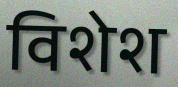
विशेश